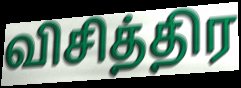
விசித்திர